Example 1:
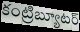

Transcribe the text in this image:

కంట్రిబ్యూటర్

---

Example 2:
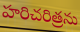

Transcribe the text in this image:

హరిచరిత్రను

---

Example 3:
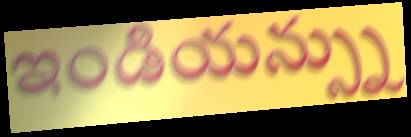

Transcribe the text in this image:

ఇండియన్స్ను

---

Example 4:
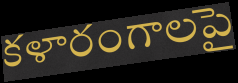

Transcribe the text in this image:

కళారంగాలపై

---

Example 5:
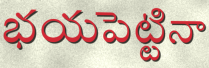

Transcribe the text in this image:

భయపెట్టినా